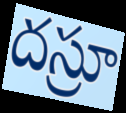
దస్రూ